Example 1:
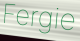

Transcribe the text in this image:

Fergie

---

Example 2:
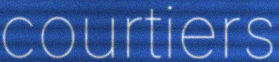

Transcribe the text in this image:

courtiers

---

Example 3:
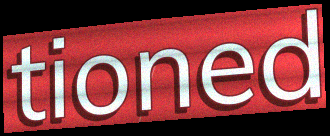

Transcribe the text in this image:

tioned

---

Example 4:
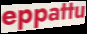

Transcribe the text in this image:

eppattu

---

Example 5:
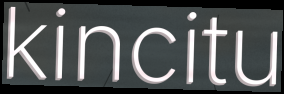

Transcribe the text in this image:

kincitu